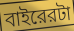
বাইরেরটা